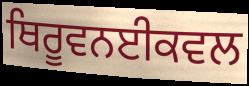
ਥਿਰੂਵਨਈਕਵਲ